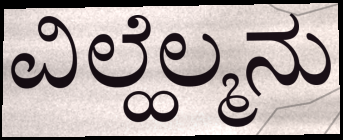
ವಿಲ್ಹೆಲ್ಮನು